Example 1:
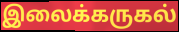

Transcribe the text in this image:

இலைக்கருகல்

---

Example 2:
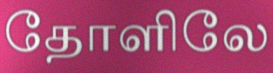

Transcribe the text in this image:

தோளிலே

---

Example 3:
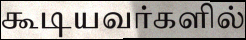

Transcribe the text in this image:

கூடியவர்களில்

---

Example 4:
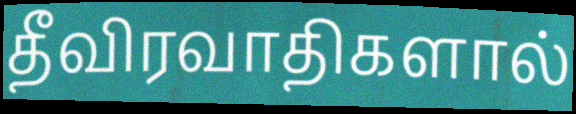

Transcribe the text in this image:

தீவிரவாதிகளால்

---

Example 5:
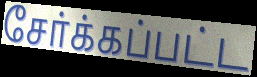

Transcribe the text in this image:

சேர்க்கப்பட்ட